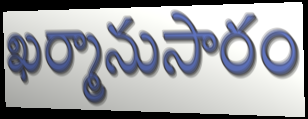
ఖర్మానుసారం